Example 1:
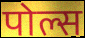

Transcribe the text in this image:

पोल्‍स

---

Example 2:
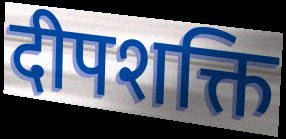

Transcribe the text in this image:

दीपशक्ति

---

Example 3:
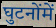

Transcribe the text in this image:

घुटनोंमें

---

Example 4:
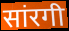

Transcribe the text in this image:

सांरगी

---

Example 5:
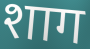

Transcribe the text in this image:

शाग